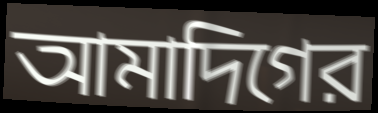
আমাদিগের